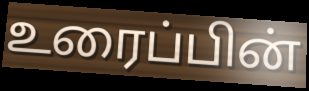
உரைப்பின்